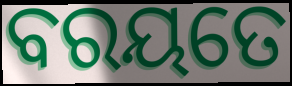
ବରୟତେ